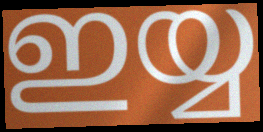
ഇയ്യ